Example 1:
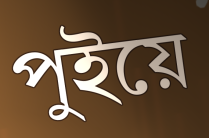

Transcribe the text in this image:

পুইয়ে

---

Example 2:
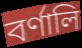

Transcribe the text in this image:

বর্ণালি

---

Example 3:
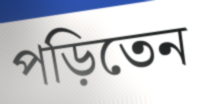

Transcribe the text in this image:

পড়িতেন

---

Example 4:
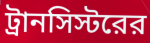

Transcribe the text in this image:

ট্রানসিস্টরের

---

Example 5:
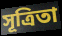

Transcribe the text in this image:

সূত্রিতা